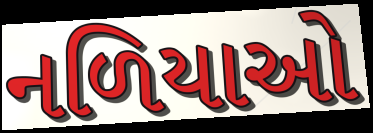
નળિયાઓ